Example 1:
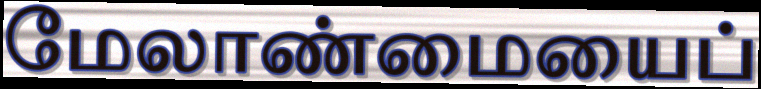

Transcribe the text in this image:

மேலாண்மையைப்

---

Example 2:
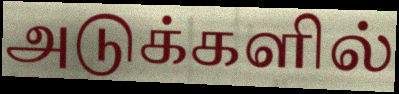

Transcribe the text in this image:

அடுக்களில்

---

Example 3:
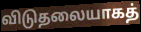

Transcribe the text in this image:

விடுதலையாகத்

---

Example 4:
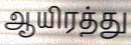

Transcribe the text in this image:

ஆயிரத்து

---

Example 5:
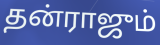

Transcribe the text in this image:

தன்ராஜும்